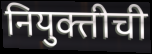
नियुक्तीची